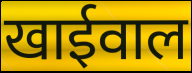
खाईवाल